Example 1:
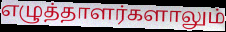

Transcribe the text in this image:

எழுத்தாளர்களாலும்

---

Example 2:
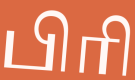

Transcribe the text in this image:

பிரி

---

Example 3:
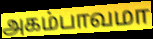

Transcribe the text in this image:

அகம்பாவமா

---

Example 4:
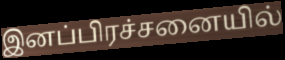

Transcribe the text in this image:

இனப்பிரச்சனையில்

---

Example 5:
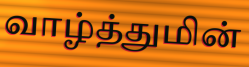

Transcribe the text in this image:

வாழ்த்துமின்